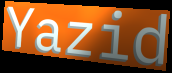
Yazid